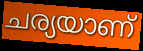
ചര്യയാണ്